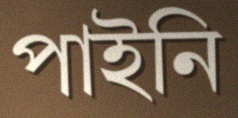
পাইনি